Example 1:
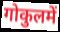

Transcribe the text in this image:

गोकुलमें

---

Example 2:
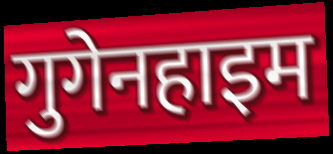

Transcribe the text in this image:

गुगेनहाइम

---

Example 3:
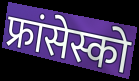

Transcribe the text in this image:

फ्रांसेस्को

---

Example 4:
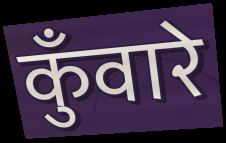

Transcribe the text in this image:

कुँवारे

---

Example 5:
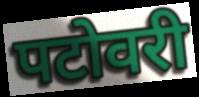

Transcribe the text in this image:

पटोवरी